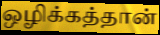
ஒழிக்கத்தான்